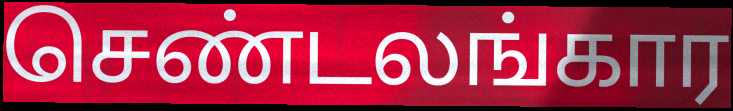
செண்டலங்கார